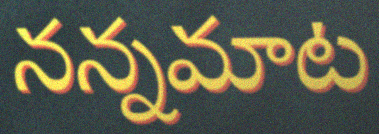
నన్నమాట